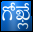
గోఖ్లే